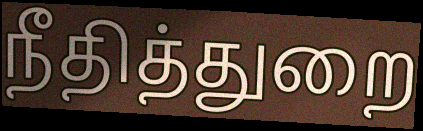
நீதித்துறை